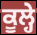
ਕੂਲ੍ਹੇ